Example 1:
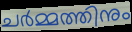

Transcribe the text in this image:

ചർമ്മത്തിനും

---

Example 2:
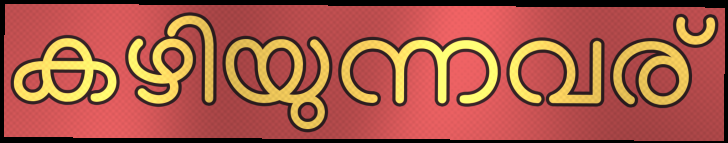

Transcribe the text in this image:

കഴിയുന്നവര്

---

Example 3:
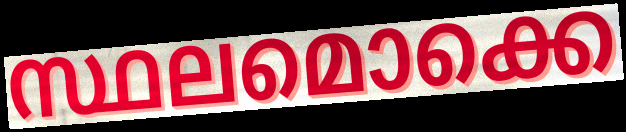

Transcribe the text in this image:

സ്ഥലമൊക്കെ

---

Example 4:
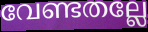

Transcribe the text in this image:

വേണ്ടതല്ലേ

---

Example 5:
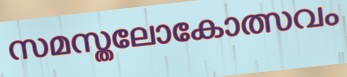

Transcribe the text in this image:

സമസ്തലോകോത്സവം